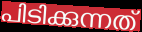
പിടിക്കുന്നത്